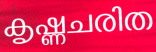
കൃഷ്ണചരിത